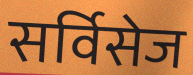
सर्विसेज